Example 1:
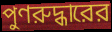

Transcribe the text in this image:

পুণরুদ্ধারের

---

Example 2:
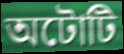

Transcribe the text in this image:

অটোটি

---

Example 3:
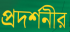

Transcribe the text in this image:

প্রদর্শনীর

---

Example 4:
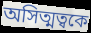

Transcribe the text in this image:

অসিত্মত্বকে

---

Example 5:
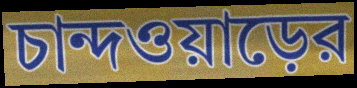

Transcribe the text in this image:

চান্দওয়াড়ের